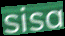
sisa